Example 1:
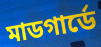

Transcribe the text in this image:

মাডগার্ডে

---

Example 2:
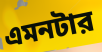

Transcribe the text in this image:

এমনটার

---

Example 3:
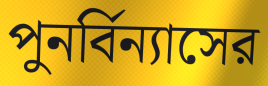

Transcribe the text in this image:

পুনর্বিন্যাসের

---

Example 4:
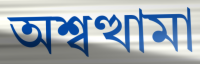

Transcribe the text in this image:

অশ্বত্থামা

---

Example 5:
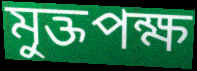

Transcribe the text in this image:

মুক্তপক্ষ